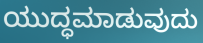
ಯುದ್ಧಮಾಡುವುದು